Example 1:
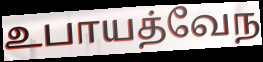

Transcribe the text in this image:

உபாயத்வேந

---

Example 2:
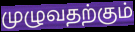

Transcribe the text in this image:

முழுவதற்கும்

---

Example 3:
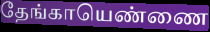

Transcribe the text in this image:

தேங்காயெண்ணை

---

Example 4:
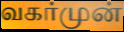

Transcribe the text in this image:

வகர்முன்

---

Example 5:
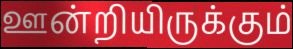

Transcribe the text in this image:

ஊன்றியிருக்கும்